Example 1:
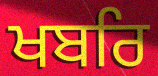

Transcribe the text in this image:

ਖਬਰਿ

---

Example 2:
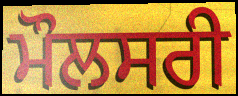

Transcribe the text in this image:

ਮੌਲਸਰੀ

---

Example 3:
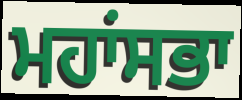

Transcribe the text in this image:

ਮਹਾਂਸਭਾ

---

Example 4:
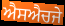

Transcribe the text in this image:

ਐਸਐਚਜੇ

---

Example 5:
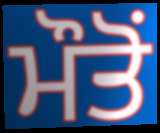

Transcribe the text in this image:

ਮੌਤੋਂ